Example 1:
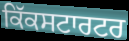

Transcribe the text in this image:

ਕਿੱਕਸਟਾਰਟਰ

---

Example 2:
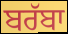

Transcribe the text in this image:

ਬਰੱਬਾ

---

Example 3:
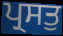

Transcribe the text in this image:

ਪ੍ਰਸਤੁ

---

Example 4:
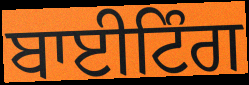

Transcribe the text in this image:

ਬਾਈਟਿੰਗ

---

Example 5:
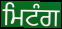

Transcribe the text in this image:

ਮਿਟੰਗ